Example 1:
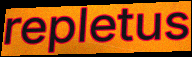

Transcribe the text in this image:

repletus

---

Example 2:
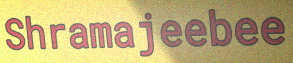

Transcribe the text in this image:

Shramajeebee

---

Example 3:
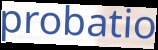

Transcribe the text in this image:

probatio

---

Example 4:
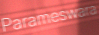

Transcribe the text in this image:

Parameswara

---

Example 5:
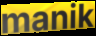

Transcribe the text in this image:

manik